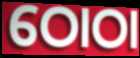
ଠୋଠା